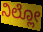
ನಿಲ್ಲೋ